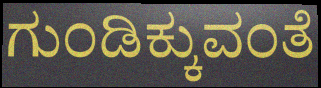
ಗುಂಡಿಕ್ಕುವಂತೆ